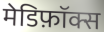
मेडिफ़ॉक्स